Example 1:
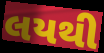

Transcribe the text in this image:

લયથી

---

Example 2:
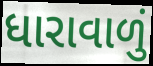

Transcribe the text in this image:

ધારાવાળું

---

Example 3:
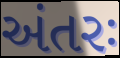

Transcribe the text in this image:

અંતરઃ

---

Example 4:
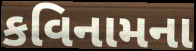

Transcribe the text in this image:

કવિનામના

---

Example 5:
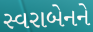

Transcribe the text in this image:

સ્વરાબેનને